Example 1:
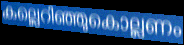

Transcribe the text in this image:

കല്ലെറിഞ്ഞുകൊല്ലണം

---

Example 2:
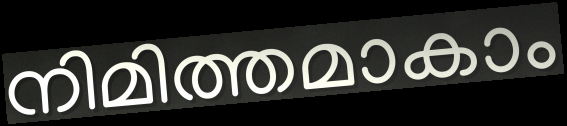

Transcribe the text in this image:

നിമിത്തമാകാം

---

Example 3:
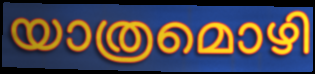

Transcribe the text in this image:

യാത്രമൊഴി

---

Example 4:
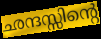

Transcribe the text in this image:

ഛന്ദസ്സിന്റെ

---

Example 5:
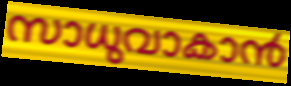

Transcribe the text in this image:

സാധുവാകാൻ